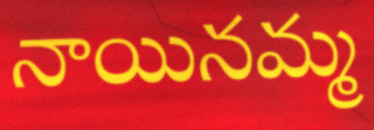
నాయినమ్మ